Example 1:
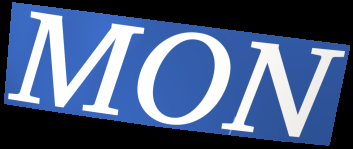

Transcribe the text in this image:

MON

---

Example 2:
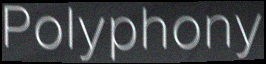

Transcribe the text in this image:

Polyphony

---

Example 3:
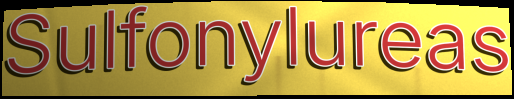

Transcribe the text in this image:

Sulfonylureas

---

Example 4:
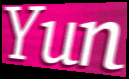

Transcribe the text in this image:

Yun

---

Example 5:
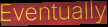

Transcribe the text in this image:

Eventually